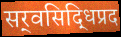
सर्वसिद्धिप्रद